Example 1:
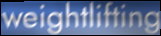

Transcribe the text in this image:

weightlifting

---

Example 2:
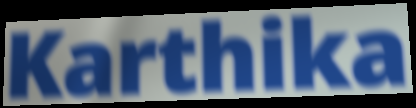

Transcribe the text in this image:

Karthika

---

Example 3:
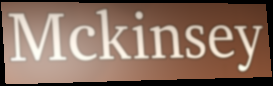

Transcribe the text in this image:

Mckinsey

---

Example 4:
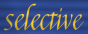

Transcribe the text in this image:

selective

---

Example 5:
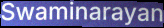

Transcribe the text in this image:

Swaminarayan